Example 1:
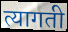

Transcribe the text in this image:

त्यागती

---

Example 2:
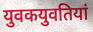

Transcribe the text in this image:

युवकयुवतियां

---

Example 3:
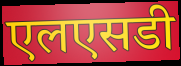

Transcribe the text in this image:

एलएसडी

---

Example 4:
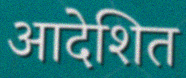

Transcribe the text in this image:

आदेशित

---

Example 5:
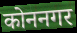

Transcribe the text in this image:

कोननगर